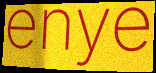
enye